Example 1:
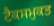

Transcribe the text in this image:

ਟੈਕਸਮੁਕਤ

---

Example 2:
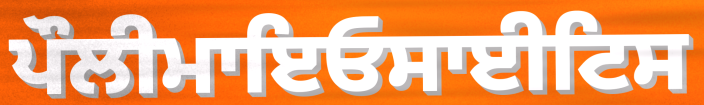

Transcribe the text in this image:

ਪੌਲੀਮਾਇਓਸਾਈਟਿਸ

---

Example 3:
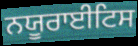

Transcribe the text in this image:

ਨਯੂਰਾਈਟਿਸ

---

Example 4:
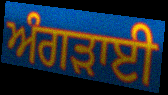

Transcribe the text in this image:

ਅੰਗੜਾਈ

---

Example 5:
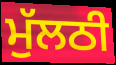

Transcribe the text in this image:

ਮੁੱਲਠੀ